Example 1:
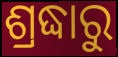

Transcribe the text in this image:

ଶ୍ରଦ୍ଧାରୁ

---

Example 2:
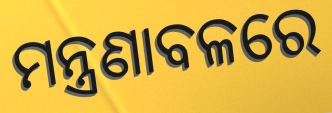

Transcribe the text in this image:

ମନ୍ତ୍ରଣାବଳରେ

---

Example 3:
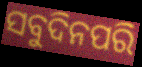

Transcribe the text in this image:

ସବୁଦିନପରି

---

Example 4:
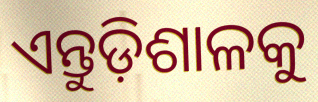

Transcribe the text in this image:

ଏନ୍ତୁଡ଼ିଶାଳକୁ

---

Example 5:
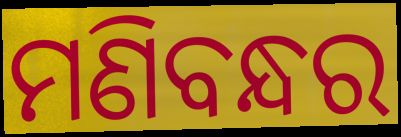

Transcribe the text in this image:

ମଣିବନ୍ଧର